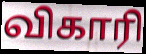
விகாரி